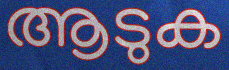
ആടുക